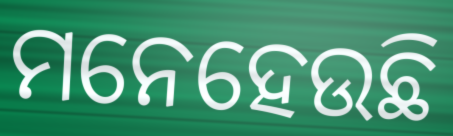
ମନେହେଉଛି